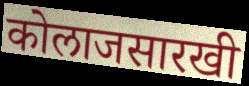
कोलाजसारखी